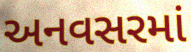
અનવસરમાં